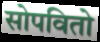
सोपवितो